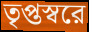
তৃপ্তস্বরে